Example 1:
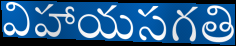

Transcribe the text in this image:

విహాయసగతి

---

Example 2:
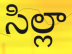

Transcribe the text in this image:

సిల్లా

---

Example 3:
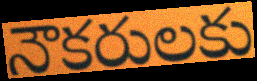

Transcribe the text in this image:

నౌకరులకు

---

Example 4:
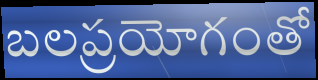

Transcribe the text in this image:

బలప్రయోగంతో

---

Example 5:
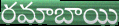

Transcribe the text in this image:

రమాబాయి